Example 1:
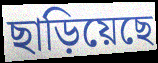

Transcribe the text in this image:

ছাড়িয়েছে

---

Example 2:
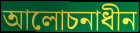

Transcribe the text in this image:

আলোচনাধীন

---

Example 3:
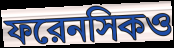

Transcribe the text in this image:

ফরেনসিকও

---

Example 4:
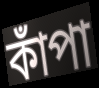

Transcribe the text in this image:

কাঁপা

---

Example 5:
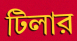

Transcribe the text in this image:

টিলার